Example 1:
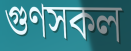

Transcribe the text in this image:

গুণসকল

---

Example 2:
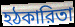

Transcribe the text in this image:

হঠকারিতা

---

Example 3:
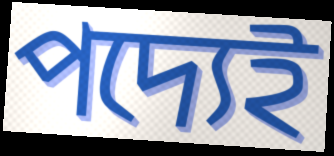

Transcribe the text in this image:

পদ্যেই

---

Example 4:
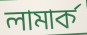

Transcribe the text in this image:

লামার্ক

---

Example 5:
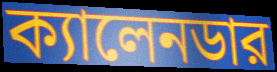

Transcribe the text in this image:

ক্যালেনডার